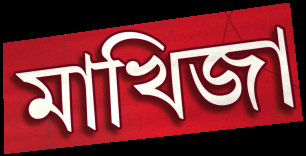
মাখিজা